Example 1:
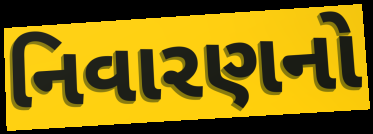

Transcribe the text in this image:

નિવારણનો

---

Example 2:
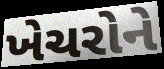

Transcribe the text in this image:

ખેચરોને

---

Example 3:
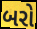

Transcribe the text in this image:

બરો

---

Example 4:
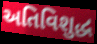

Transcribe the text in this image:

અતિવિશુદ્ધ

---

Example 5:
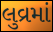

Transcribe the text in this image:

લુવ્રમાં